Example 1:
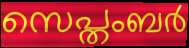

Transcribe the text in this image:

സെപ്തംബർ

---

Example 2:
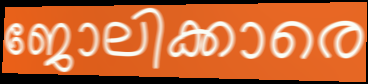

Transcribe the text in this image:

ജോലിക്കാരെ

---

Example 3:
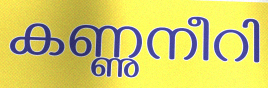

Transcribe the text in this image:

കണ്ണുനീറി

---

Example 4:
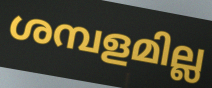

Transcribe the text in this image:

ശമ്പളമില്ല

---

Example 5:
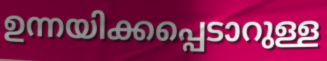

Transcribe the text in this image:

ഉന്നയിക്കപ്പെടാറുള്ള